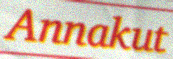
Annakut